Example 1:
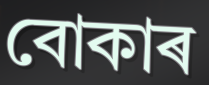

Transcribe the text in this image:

বোকাৰ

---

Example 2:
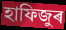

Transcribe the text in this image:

হাফিজুৰ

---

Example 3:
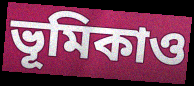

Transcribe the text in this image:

ভূমিকাও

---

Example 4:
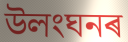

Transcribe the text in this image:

উলংঘনৰ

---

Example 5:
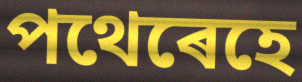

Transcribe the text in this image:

পথেৰেহে